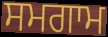
ਸਮਗਾਮ